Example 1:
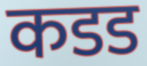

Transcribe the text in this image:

कडड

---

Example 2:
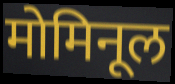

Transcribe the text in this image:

मोमिनूल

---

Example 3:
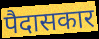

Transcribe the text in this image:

पैदासकार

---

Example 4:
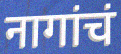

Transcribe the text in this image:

नागांचं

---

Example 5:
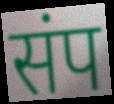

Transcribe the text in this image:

संप